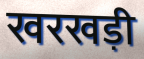
खरखड़ी